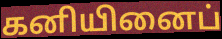
கனியினைப்